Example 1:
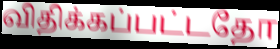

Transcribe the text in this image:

விதிக்கப்பட்டதோ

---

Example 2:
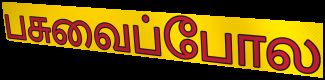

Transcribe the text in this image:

பசுவைப்போல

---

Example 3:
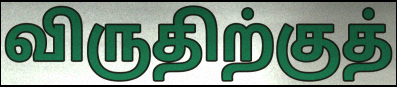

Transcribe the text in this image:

விருதிற்குத்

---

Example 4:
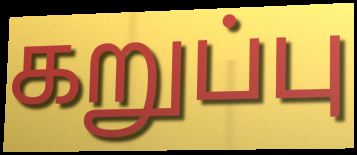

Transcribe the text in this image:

கறுப்பு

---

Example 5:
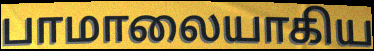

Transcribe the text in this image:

பாமாலையாகிய